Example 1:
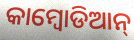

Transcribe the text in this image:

କାମ୍ବୋଡିଆନ୍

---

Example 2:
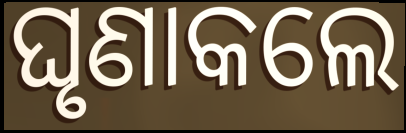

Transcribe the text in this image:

ଘୃଣାକଲେ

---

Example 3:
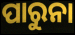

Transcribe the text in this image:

ପାରୁନା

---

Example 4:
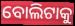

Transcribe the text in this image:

ବୋଲିଟାକୁ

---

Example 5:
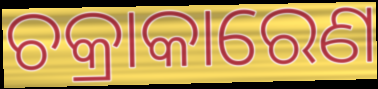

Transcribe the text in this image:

ଚକ୍ରାକାରେଣ